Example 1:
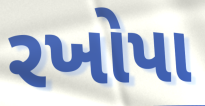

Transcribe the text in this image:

રખોપા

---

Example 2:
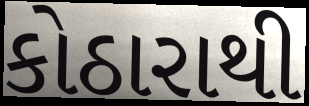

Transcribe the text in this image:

કોઠારાથી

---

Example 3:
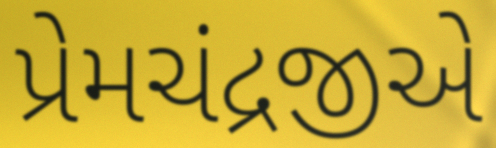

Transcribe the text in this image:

પ્રેમચંદ્રજીએ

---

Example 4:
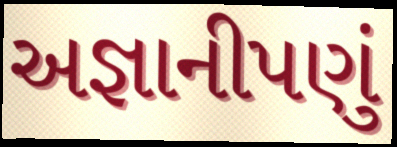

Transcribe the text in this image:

અજ્ઞાનીપણું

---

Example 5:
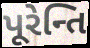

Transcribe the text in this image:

પૂરેન્તિ